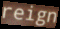
reign